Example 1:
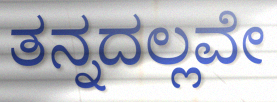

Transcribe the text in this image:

ತನ್ನದಲ್ಲವೇ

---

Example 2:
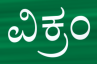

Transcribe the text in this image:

ವಿಕ್ರಂ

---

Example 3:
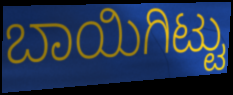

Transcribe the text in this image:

ಬಾಯಿಗಿಟ್ಟು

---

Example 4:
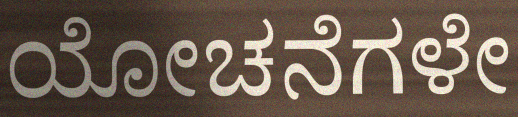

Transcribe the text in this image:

ಯೋಚನೆಗಳೇ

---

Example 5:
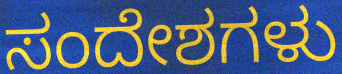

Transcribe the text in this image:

ಸಂದೇಶಗಳು